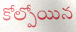
కోల్పోయిన